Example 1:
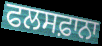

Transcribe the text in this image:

ਫਲਸਫ਼ਾਨਾ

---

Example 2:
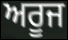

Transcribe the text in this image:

ਅਰੂਜ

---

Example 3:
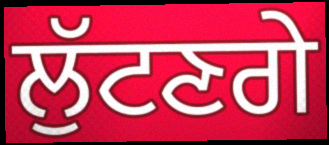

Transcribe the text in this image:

ਲੁੱਟਣਗੇ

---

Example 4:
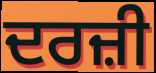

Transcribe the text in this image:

ਦਰਜ਼ੀ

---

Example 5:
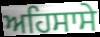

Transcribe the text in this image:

ਅਹਿਸਾਸੇ